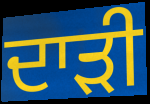
ਦਾੜੀ